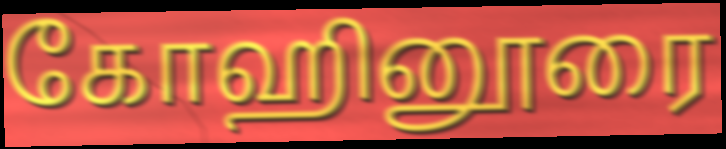
கோஹினூரை